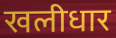
खलीधार